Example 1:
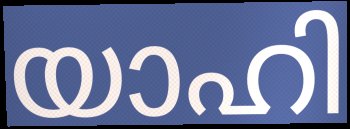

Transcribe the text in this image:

യാഹി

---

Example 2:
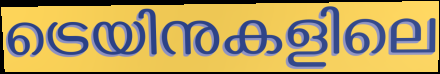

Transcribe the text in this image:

ട്രെയിനുകളിലെ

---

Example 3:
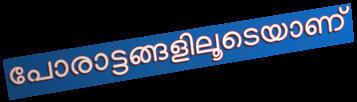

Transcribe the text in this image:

പോരാട്ടങ്ങളിലൂടെയാണ്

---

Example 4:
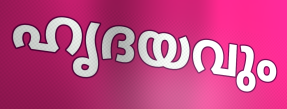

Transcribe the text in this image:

ഹൃദയവും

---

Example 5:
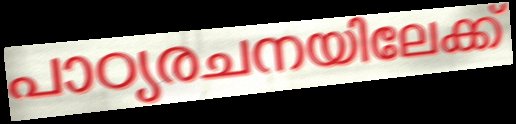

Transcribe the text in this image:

പാഠ്യരചനയിലേക്ക്